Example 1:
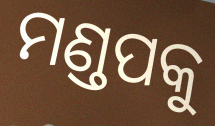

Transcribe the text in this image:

ମଣ୍ଡପକୁ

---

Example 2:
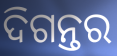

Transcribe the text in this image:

ଦିଗନ୍ତର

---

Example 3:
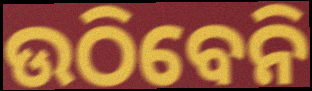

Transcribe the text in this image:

ଉଠିବେନି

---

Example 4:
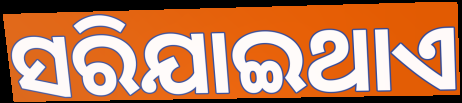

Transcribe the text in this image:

ସରିଯାଇଥାଏ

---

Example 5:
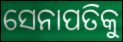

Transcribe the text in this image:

ସେନାପତିକୁ